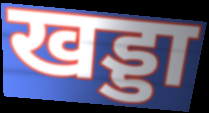
खड्डा